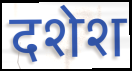
दशेश